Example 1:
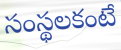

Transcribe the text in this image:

సంస్థలకంటే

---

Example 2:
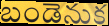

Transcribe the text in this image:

బండెనుక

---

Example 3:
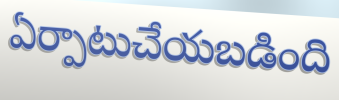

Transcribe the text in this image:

ఏర్పాటుచేయబడింది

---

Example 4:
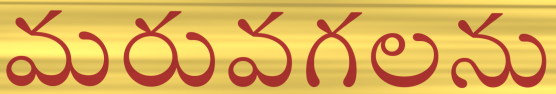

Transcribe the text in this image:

మరువగలను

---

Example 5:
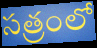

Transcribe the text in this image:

సత్రంలో